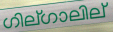
ഗില്ഗാലില്